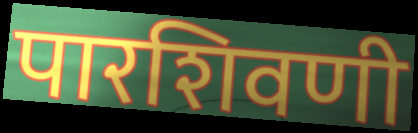
पारशिवणी